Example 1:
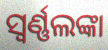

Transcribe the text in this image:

ସ୍ବର୍ଣ୍ଣଲଙ୍କା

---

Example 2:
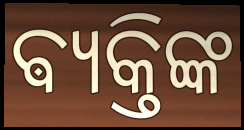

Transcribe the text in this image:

ଵ୍ୟକ୍ତିଙ୍କ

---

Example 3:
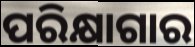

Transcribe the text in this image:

ପରିକ୍ଷାଗାର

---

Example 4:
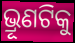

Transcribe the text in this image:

ଭ୍ରୂଣଟିକୁ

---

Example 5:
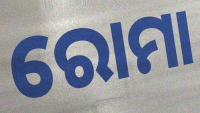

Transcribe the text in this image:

ରୋମା